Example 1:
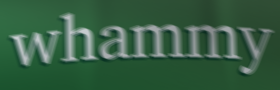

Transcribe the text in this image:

whammy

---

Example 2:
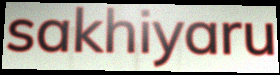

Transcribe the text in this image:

sakhiyaru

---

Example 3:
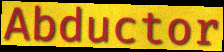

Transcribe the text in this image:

Abductor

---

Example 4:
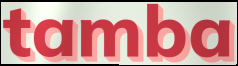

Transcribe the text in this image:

tamba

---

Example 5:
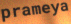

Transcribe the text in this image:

prameya